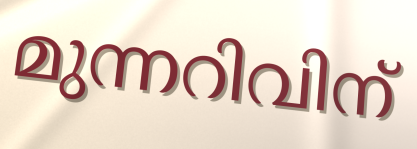
മുന്നറിവിന്